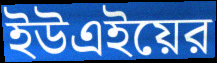
ইউএইয়ের